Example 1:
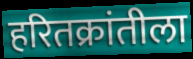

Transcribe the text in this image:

हरितक्रांतीला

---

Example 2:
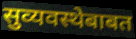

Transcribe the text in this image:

सुव्यवस्थेबाबत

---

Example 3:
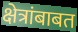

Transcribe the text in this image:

क्षेत्रांबाबत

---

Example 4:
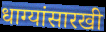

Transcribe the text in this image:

धाग्यांसारखी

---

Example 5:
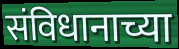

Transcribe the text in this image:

संविधानाच्या